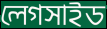
লেগসাইড